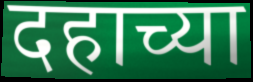
दहाच्या